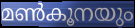
മൺകൂനയും